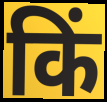
किं